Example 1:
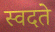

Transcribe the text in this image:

स्वदते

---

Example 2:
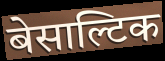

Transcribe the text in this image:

बेसाल्टिक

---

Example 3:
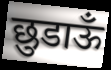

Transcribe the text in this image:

छुडाऊँ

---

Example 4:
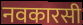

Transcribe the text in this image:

नवकारसी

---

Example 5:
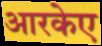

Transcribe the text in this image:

आरकेए